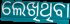
ଲେଖିଥିବା